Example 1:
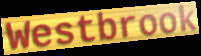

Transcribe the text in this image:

Westbrook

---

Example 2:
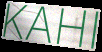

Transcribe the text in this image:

KAHI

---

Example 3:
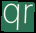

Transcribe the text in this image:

qr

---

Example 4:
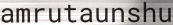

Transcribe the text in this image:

amrutaunshu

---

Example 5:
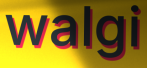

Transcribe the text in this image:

walgi